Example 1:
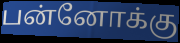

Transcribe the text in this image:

பன்னோக்கு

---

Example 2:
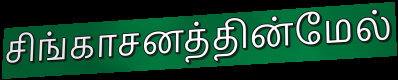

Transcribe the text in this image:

சிங்காசனத்தின்மேல்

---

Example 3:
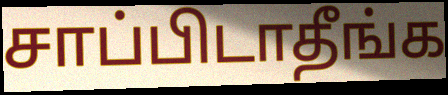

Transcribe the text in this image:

சாப்பிடாதீங்க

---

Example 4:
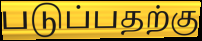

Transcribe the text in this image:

படுப்பதற்கு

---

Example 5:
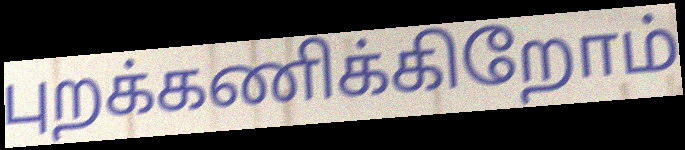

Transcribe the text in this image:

புறக்கணிக்கிறோம்